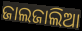
ଜାଲଜାଲିଆ